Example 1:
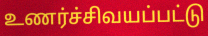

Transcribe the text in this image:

உணர்ச்சிவயப்பட்டு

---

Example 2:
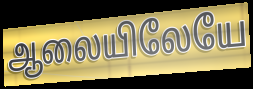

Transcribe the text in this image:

ஆலையிலேயே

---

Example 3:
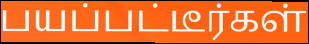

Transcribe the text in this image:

பயப்பட்டீர்கள்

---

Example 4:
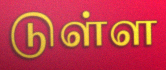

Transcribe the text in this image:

டுள்ள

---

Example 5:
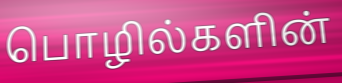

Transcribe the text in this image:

பொழில்களின்